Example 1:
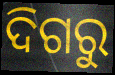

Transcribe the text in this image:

ଦିଗରୁ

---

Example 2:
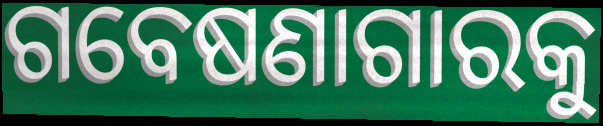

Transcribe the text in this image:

ଗବେଷଣାଗାରକୁ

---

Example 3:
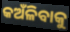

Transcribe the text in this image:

କଅଁଳିବାକୁ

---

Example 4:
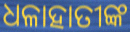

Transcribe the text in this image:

ଧଳାହାତୀଙ୍କ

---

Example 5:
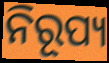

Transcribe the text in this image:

ନିରୂପ୍ୟ